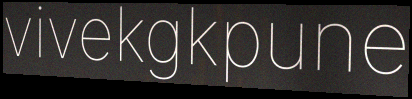
vivekgkpune